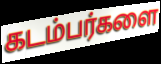
கடம்பர்களை